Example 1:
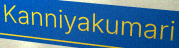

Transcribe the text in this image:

Kanniyakumari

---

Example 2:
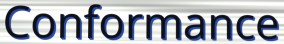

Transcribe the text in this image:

Conformance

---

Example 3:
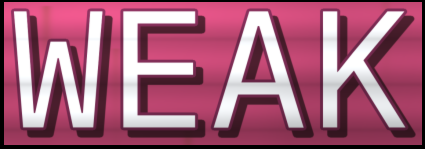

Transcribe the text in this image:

WEAK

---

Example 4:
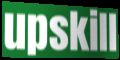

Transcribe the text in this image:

upskill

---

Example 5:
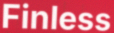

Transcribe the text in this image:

Finless